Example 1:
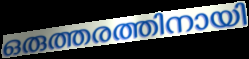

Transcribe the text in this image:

ഒരുത്തരത്തിനായി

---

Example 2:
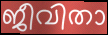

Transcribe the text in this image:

ജീവിതാ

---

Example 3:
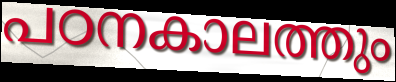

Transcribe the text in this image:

പഠനകാലത്തും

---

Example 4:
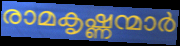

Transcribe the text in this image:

രാമകൃഷ്ണന്മാർ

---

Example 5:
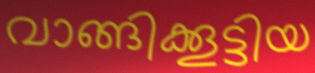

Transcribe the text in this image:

വാങ്ങിക്കൂട്ടിയ